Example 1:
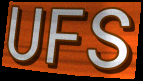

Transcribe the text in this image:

UFS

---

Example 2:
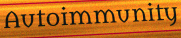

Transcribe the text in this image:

Autoimmunity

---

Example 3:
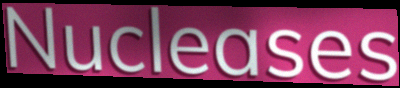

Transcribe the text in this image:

Nucleases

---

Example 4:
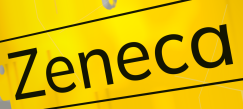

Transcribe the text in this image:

Zeneca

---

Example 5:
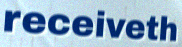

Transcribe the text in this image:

receiveth